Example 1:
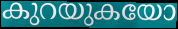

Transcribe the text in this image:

കുറയുകയോ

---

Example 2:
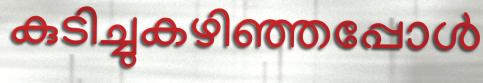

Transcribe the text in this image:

കുടിച്ചുകഴിഞ്ഞപ്പോൾ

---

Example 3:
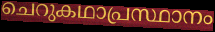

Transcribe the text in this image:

ചെറുകഥാപ്രസ്ഥാനം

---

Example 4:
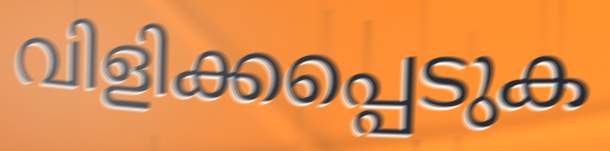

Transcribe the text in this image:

വിളിക്കപ്പെടുക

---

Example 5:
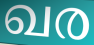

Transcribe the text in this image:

ഖര